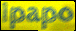
Ipapo